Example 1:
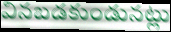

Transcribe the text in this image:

వినబడకుండునట్లు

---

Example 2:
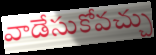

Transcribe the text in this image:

వాడేసుకోవచ్చు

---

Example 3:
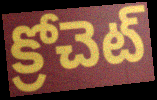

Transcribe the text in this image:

క్రోచెట్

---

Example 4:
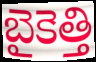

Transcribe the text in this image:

బైకెత్తి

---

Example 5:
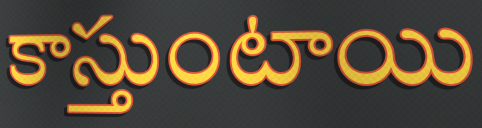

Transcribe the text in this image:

కాస్తుంటాయి